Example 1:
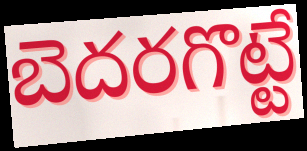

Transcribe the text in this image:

బెదరగొట్టే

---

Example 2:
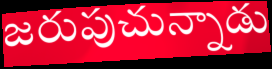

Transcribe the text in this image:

జరుపుచున్నాడు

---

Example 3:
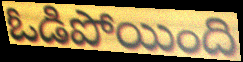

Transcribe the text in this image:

ఓడిపోయింది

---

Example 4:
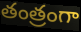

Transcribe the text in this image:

తంత్రంగా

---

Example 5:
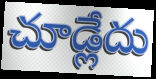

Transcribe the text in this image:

చూడ్లేదు